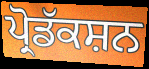
ਪ੍ਰੋਡੱਕਸ਼ਨ